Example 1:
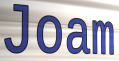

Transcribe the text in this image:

Joam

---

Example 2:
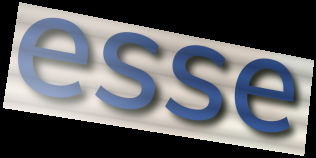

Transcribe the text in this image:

esse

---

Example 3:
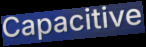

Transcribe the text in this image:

Capacitive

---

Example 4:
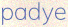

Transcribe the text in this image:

padye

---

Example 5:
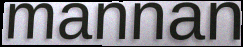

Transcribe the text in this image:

mannan